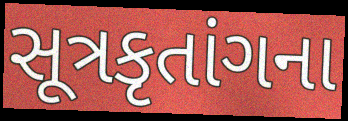
સૂત્રકૃતાંગના